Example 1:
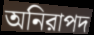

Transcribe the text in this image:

অনিরাপদ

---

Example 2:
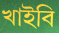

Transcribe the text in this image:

খাইবি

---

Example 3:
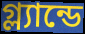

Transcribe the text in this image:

গ্ল্যান্ডে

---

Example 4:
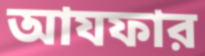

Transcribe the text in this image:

আযফার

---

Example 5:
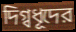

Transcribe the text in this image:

দিগ্বধূদের